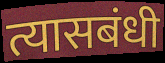
त्यासबंधी